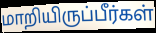
மாறியிருப்பீர்கள்